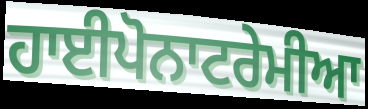
ਹਾਈਪੋਨਾਟਰੇਮੀਆ